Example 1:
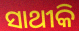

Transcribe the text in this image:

ସାଥୀକି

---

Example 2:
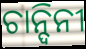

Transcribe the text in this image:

ଚାନ୍ଦିନୀ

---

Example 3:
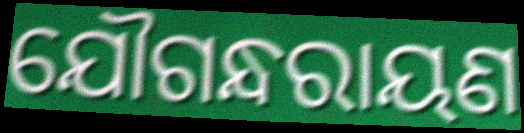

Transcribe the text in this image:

ଯୌଗନ୍ଧରାୟଣ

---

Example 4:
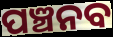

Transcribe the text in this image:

ପଞ୍ଚନବ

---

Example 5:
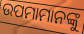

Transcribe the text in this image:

ଉପମାମାନଙ୍କୁ